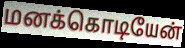
மனக்கொடியேன்